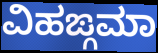
ವಿಹಙ್ಗಮಾ